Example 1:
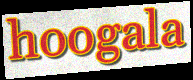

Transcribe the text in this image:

hoogala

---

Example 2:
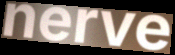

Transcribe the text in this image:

nerve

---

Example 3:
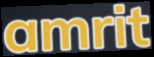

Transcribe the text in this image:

amrit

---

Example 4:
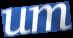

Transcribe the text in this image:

um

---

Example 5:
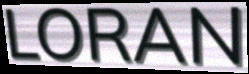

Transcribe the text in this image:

LORAN